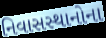
નિવાસસ્થાનોના